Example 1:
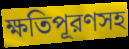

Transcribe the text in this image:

ক্ষতিপূরণসহ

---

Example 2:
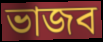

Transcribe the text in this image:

ভাজব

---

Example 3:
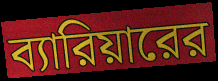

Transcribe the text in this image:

ব্যারিয়ারের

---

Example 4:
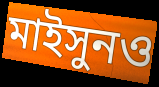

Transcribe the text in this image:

মাইসুনও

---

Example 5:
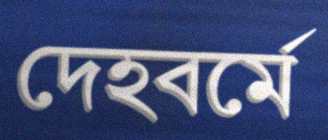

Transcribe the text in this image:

দেহবর্মে